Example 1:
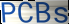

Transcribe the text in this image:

PCBs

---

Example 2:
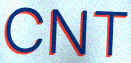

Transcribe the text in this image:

CNT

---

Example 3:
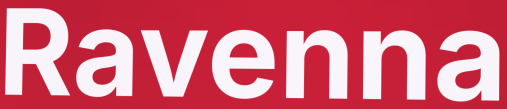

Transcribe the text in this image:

Ravenna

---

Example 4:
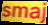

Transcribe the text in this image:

smaj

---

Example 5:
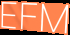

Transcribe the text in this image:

EFM